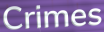
Crimes